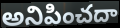
అనిపించదా